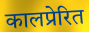
कालप्रेरित